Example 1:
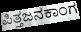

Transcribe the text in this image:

ಪಿತ್ತಜನಕಾಂಗ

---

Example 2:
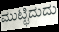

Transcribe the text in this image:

ಮುಟ್ಟಿದುದು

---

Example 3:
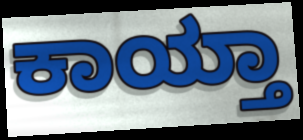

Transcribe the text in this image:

ಕಾಯ್ತಾ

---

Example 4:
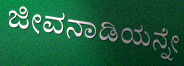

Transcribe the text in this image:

ಜೀವನಾಡಿಯನ್ನೇ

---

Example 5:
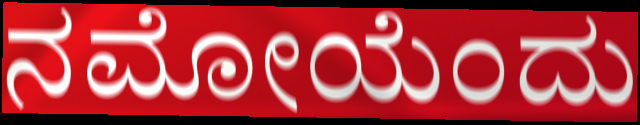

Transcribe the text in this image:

ನಮೋಯೆಂದು